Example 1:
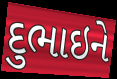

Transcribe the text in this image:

દુભાઇને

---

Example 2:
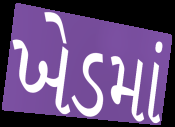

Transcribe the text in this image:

ખેડમાં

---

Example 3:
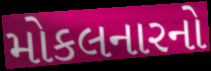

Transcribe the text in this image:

મોકલનારનો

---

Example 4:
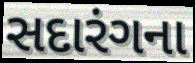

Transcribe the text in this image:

સદારંગના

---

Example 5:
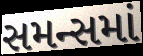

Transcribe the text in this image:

સમન્સમાં